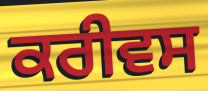
ਕਰੀਵਸ